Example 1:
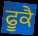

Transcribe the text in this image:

ਫੂਕੈ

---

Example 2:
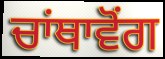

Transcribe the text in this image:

ਚਾਂਥਾਵੋਂਗ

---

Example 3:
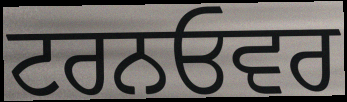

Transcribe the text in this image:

ਟਰਨਓਵਰ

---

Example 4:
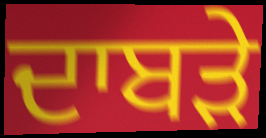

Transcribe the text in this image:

ਦਾਬੜੇ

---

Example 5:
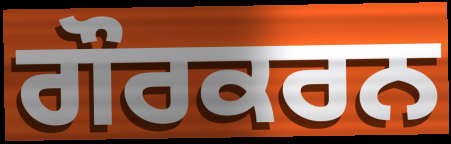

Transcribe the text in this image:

ਗੌਰਕਰਨ